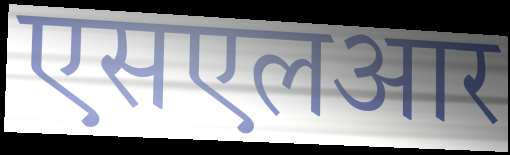
एसएलआर